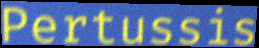
Pertussis